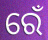
ରେଁ